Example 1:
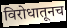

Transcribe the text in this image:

विरोधातूनच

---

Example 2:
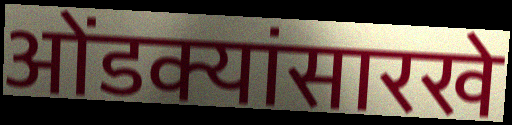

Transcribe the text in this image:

ओंडक्यांसारखे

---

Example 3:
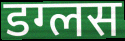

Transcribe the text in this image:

डग्लस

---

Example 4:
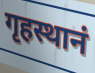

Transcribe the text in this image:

गृहस्थानं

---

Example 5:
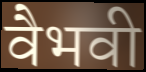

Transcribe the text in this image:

वैभवी